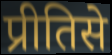
प्रीतिसे